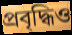
প্রবৃদ্ধিও